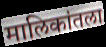
मालिकांतला